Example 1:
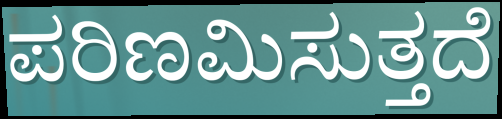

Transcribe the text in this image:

ಪರಿಣಮಿಸುತ್ತದೆ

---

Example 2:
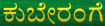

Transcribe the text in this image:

ಕುಬೇರಂಗೆ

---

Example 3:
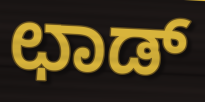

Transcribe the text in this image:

ಛಾಡ್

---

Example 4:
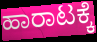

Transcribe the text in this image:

ಹಾರಾಟಕ್ಕೆ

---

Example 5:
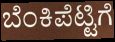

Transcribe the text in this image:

ಬೆಂಕಿಪೆಟ್ಟಿಗೆ